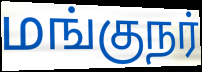
மங்குநர்